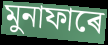
মুনাফাৰে